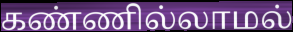
கண்ணில்லாமல்